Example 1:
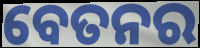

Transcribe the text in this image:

ବେତନର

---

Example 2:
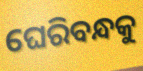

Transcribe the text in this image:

ଘେରିବନ୍ଧକୁ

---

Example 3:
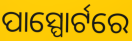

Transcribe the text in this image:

ପାସ୍ପୋର୍ଟରେ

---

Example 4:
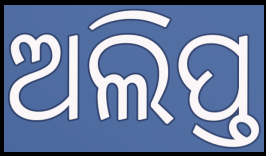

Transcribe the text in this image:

ଅଲିପ୍ତ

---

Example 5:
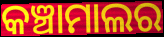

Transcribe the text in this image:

କଞ୍ଚାମାଲର